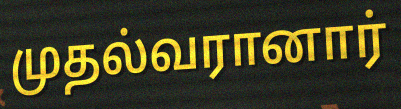
முதல்வரானார்